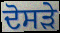
ਦੋਸੜੇ